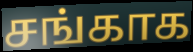
சங்காக